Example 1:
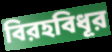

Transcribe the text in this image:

বিরহবিধূর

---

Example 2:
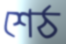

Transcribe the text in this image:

শেঠ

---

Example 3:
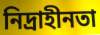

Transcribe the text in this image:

নিদ্রাহীনতা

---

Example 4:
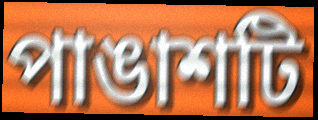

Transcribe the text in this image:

পাঙাশটি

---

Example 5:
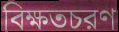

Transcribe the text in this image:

বিক্ষতচরণ